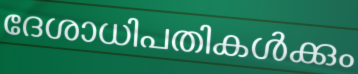
ദേശാധിപതികൾക്കും